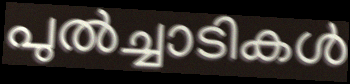
പുൽച്ചാടികൾ